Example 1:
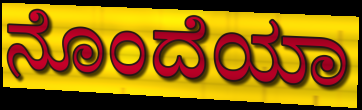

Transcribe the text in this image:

ನೊಂದೆಯಾ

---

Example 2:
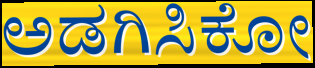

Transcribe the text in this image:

ಅಡಗಿಸಿಕೋ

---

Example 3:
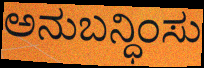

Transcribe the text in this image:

ಅನುಬನ್ಧಿಂಸು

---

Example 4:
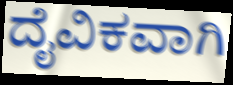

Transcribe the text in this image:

ದೈವಿಕವಾಗಿ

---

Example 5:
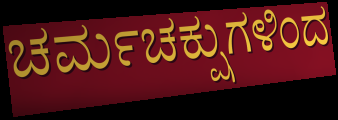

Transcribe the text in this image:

ಚರ್ಮಚಕ್ಷುಗಳಿಂದ